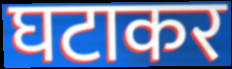
घटाकर